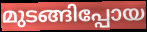
മുടങ്ങിപ്പോയ